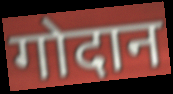
गोदान